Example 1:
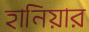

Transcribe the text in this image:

হানিয়ার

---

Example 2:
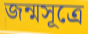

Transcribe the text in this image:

জন্মসূত্রে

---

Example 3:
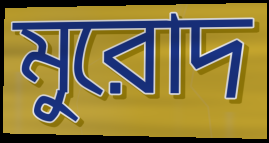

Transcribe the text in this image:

মুরোদ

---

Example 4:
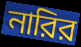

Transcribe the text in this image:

নারির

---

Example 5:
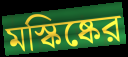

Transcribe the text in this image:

মস্কিষ্কের